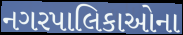
નગરપાલિકાઓના